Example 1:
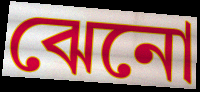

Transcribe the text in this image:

ঝেনো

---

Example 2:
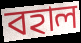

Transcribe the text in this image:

বহাল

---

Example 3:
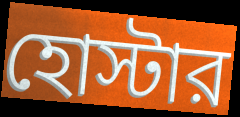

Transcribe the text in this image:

হোস্টার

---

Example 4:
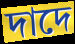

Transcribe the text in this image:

দাদে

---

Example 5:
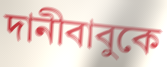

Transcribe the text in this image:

দানীবাবুকে